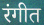
रंगीत